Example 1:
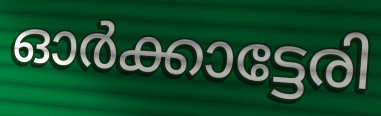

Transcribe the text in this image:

ഓർക്കാട്ടേരി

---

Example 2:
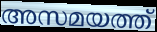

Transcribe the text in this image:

അസമയത്ത്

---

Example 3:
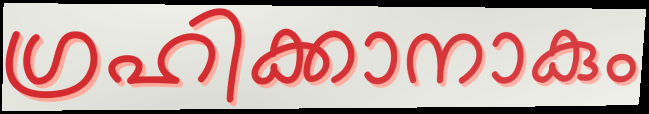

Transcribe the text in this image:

ഗ്രഹിക്കാനാകും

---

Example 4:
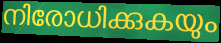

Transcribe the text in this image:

നിരോധിക്കുകയും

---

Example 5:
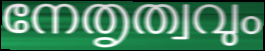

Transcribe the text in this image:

നേതൃത്വവും